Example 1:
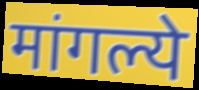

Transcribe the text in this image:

मांगल्ये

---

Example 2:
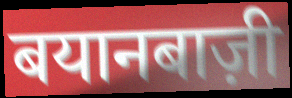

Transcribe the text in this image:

बयानबाज़ी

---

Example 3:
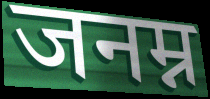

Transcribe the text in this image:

जनम्न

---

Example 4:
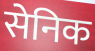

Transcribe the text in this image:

सेनिक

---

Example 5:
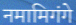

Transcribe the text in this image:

नमामिगंगे